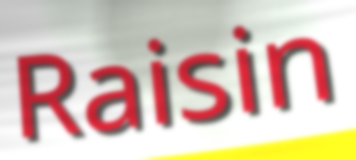
Raisin